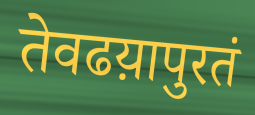
तेवढय़ापुरतं